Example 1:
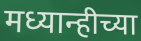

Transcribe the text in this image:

मध्यान्हीच्या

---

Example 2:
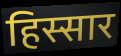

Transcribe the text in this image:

हिस्सार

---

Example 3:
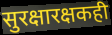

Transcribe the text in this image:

सुरक्षारक्षकही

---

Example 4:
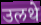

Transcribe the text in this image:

उलथे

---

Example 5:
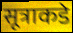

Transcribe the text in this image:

सूत्राकडे